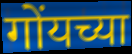
गोंयच्या